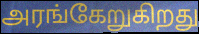
அரங்கேறுகிறது